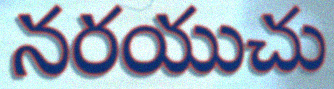
నరయుచు